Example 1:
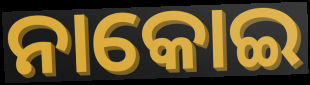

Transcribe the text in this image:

ନାକୋଇ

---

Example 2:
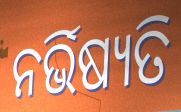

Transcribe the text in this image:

ନର୍ଭିଷ୍ୟତି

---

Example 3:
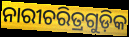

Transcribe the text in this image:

ନାରୀଚରିତ୍ରଗୁଡ଼ିକ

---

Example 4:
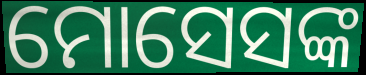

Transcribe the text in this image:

ମୋସେସଙ୍କ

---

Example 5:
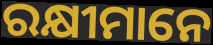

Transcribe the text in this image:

ରକ୍ଷୀମାନେ